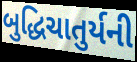
બુદ્ધિચાતુર્યની